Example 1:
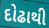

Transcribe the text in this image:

દોઢાથી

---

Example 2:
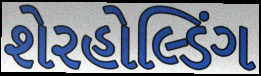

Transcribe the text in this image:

શેરહોલ્ડિંગ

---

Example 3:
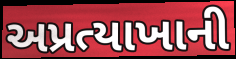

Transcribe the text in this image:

અપ્રત્યાખાની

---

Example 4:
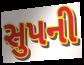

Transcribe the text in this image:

સુપની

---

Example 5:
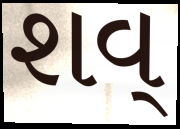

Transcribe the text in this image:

શવ્